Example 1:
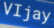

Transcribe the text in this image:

VIjay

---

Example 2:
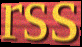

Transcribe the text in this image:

rss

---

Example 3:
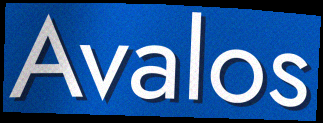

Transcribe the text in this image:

Avalos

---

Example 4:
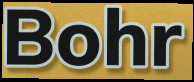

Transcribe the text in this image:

Bohr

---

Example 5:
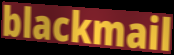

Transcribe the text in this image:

blackmail